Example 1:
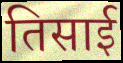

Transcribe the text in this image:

तिसाई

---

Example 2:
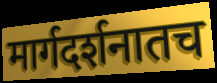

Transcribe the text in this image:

मार्गदर्शनातच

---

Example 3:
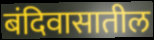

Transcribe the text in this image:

बंदिवासातील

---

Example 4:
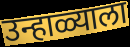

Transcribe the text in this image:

उन्हाळ्याला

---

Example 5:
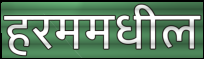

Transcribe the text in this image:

हरममधील